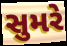
સુમરે